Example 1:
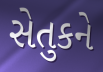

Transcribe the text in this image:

સેતુકને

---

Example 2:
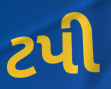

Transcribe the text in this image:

ટપી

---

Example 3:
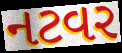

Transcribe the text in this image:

નટવર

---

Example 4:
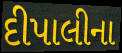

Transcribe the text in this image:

દીપાલીના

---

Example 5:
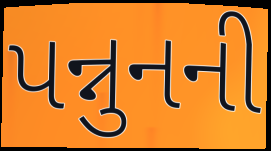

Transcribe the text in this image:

પન્નુનની